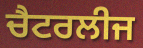
ਚੈਟਰਲੀਜ